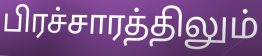
பிரச்சாரத்திலும்